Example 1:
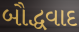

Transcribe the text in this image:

બૌદ્ધવાદ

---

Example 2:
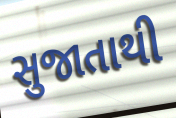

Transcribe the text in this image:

સુજાતાથી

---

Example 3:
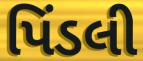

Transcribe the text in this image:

પિંડલી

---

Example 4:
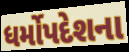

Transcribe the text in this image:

ધર્મોપદેશના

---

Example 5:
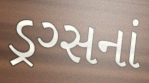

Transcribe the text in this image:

ડ્રગ્સનાં